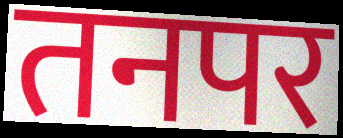
तनपर